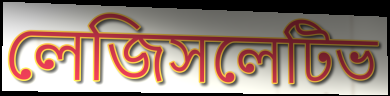
লেজিসলেটিভ